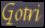
Gotri